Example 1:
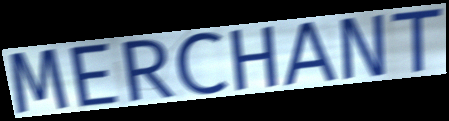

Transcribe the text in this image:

MERCHANT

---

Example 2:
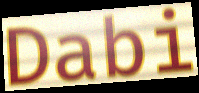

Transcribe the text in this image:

Dabi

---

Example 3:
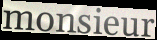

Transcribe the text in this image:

monsieur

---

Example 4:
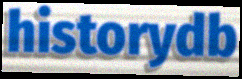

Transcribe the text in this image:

historydb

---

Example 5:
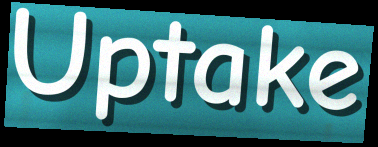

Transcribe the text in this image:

Uptake